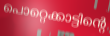
പൊറ്റെക്കാട്ടിന്റെ